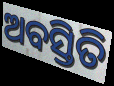
ଅବସ୍ତିତି